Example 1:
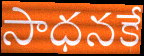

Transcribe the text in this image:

సాధనకే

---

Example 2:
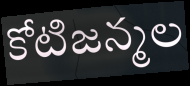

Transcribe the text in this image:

కోటిజన్మల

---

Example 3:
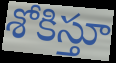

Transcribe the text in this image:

శోకిస్తూ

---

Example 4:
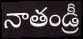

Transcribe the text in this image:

నాతండ్రీ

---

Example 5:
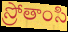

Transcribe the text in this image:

స్రోతాంసి